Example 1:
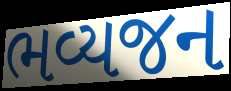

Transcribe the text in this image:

ભવ્યજન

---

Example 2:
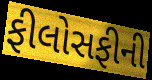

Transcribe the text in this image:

ફીલોસફીની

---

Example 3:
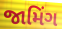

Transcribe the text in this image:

જામિંગ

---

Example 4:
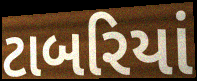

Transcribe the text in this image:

ટાબરિયાં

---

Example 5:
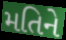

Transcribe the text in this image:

મતિને